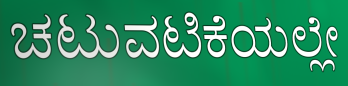
ಚಟುವಟಿಕೆಯಲ್ಲೇ